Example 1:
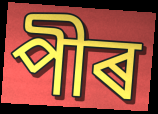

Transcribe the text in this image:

পীৰ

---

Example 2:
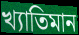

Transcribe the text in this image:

খ্যাতিমান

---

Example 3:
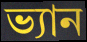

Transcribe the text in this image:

ভ্যান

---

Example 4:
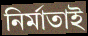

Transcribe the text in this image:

নিৰ্মাতাই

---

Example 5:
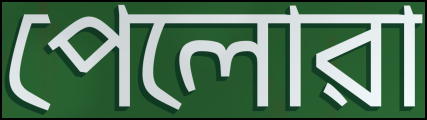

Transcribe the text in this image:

পেলোৱা